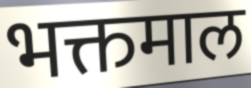
भक्तमाल